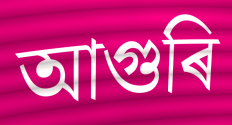
আগুৰি